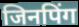
जिनपिंग